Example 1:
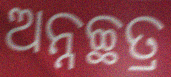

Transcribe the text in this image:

ଅନ୍ନଚ୍ଛତ୍ର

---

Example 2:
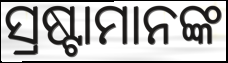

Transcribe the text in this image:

ସ୍ରଷ୍ଟାମାନଙ୍କ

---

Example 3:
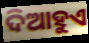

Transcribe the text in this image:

ଦିଆହୁଏ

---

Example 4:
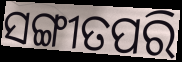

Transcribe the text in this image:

ସଙ୍ଗୀତପରି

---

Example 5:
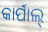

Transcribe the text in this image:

କାର୍ପାଲ୍